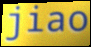
jiao